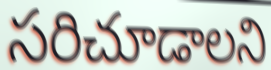
సరిచూడాలని